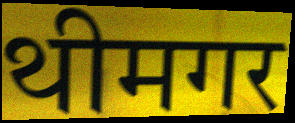
थीमगर